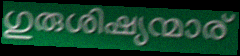
ഗുരുശിഷ്യന്മാര്